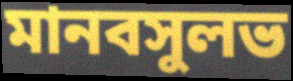
মানবসুলভ